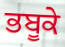
ਭਬੂਕੇ